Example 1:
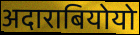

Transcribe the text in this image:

अदाराबियोयो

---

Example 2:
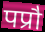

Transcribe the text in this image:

पप्रौ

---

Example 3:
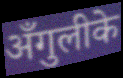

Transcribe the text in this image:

अँगुलीके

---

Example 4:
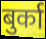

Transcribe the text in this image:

बुर्का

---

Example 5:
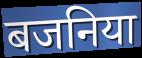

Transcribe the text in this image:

बजनिया